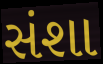
સંશા